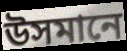
উসমানে